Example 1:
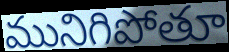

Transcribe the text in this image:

మునిగిపోతూ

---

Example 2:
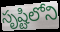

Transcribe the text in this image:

సృష్టిలోని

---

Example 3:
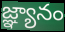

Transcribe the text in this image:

జ్ఞ్యానం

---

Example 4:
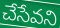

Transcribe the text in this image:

చేసేవని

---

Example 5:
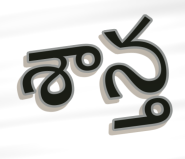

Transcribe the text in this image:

శాన్త